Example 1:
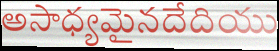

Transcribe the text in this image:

అసాధ్యమైనదేదియు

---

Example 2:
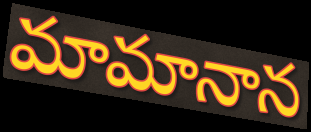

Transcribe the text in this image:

మామానాన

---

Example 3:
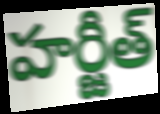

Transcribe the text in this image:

హర్జీత్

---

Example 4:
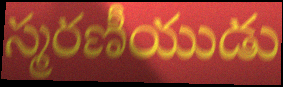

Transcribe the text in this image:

స్మరణీయుడు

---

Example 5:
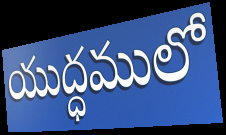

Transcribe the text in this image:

యుద్ధములో